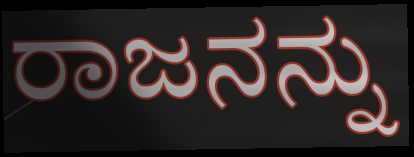
ರಾಜನನ್ನು